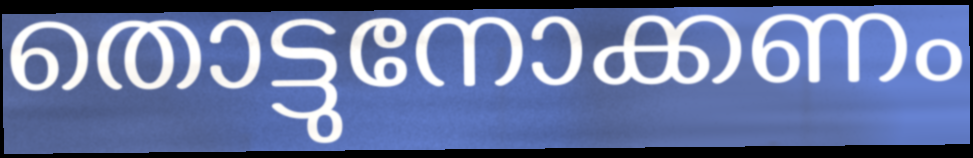
തൊട്ടുനോക്കണം